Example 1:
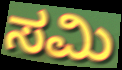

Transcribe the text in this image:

ಸಮಿ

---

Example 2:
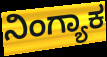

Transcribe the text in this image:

ನಿಂಗ್ಯಾಕ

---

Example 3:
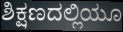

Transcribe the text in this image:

ಶಿಕ್ಷಣದಲ್ಲಿಯೂ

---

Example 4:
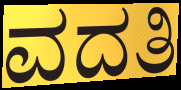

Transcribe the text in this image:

ವದತಿ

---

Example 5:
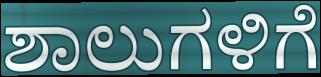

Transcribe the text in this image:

ಶಾಲುಗಳಿಗೆ